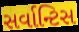
સર્વાન્ટિસ